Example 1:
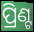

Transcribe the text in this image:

ପ୍ରିଣ୍ଟ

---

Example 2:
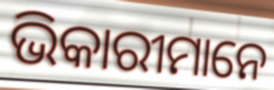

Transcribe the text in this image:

ଭିକାରୀମାନେ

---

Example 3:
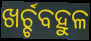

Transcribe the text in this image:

ଖର୍ଚ୍ଚବହୁଳ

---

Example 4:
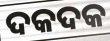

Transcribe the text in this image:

ଦକଦକ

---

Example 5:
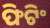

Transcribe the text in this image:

ଫିଟିଂ